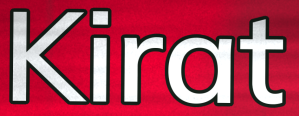
Kirat